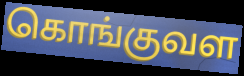
கொங்குவள